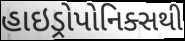
હાઇડ્રોપોનિક્સથી